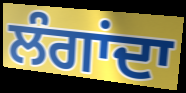
ਲੰਗਾਂਦਾ